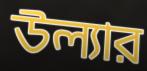
উল্যার